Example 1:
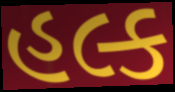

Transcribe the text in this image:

હલ્ક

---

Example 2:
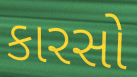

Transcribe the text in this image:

કારસો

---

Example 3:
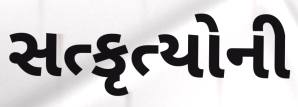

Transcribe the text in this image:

સત્કૃત્યોની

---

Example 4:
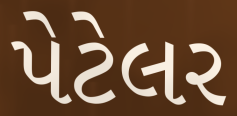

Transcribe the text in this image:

પેટેલર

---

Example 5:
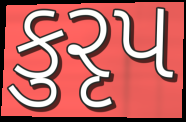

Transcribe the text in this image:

કુરૃપ